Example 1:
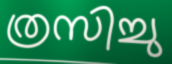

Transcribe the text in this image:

ത്രസിച്ചു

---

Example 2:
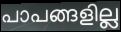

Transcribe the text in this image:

പാപങ്ങളില്ല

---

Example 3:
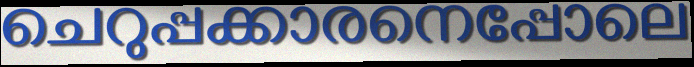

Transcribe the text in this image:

ചെറുപ്പക്കാരനെപ്പോലെ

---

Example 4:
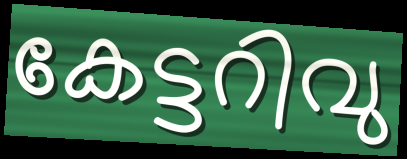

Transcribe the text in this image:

കേട്ടറിവു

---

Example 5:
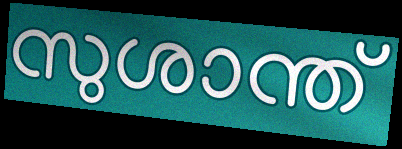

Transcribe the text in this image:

സുശാന്ത്